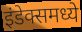
इंडेक्समध्ये